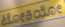
ಟೋಕಿಯೋ